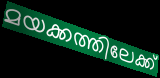
മയക്കത്തിലേക്ക്